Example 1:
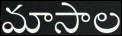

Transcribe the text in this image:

మాసాల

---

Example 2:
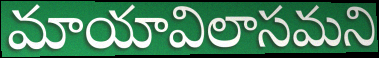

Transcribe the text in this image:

మాయావిలాసమని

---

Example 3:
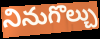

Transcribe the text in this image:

నినుగొల్చు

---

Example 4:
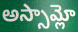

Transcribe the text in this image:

అస్సామ్లో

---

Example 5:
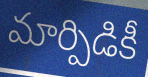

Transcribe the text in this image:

మార్పిడికీ